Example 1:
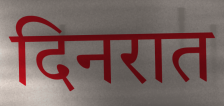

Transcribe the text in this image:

दिनरात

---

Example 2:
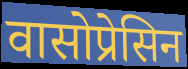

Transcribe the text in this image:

वासोप्रेसिन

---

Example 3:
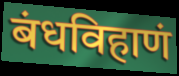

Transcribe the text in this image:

बंधविहाणं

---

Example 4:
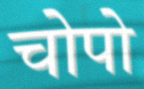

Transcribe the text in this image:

चोपो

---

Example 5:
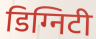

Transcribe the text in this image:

डिग्निटी